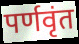
पर्णवृंत